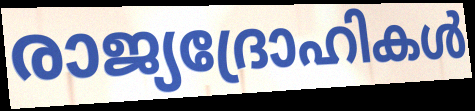
രാജ്യദ്രോഹികൾ